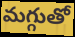
మగ్గుతో